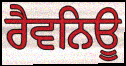
ਰੈਵਨਿਊ